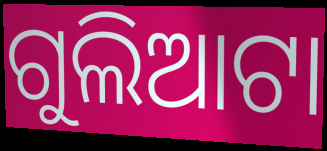
ଗୁଲିଆଟା